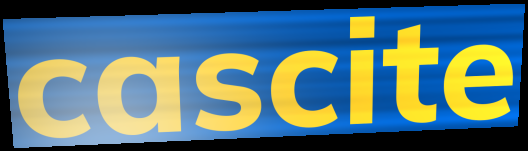
cascite